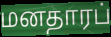
மனதாரப்